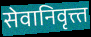
सेवानिवृत्त्त